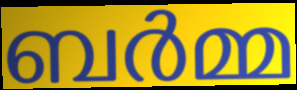
ബർമ്മ